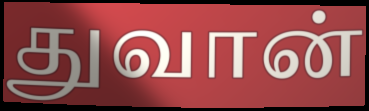
துவான்